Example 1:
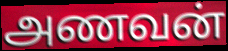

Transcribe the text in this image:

அணவன்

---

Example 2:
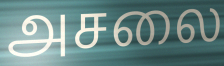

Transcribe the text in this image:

அசலை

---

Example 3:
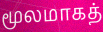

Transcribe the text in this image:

மூலமாகத்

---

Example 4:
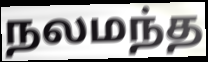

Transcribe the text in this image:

நலமந்த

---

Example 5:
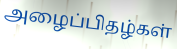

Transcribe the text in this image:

அழைப்பிதழ்கள்